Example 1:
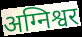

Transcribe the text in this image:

अग्निश्वर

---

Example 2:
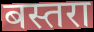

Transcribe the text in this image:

बस्तरा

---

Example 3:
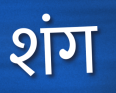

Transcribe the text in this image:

शंग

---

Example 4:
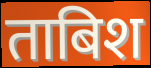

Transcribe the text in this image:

ताबिश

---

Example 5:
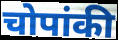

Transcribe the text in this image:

चोपांकी